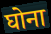
घोना